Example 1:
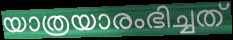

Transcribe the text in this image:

യാത്രയാരംഭിച്ചത്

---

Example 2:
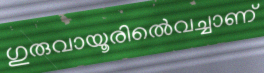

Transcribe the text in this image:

ഗുരുവായൂരിൽെവച്ചാണ്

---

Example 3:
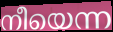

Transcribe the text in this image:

നീയെന്ന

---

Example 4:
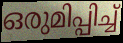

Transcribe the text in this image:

ഒരുമിപ്പിച്ച്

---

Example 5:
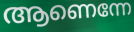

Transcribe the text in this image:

ആണെന്നേ